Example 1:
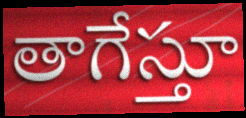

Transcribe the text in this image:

తాగేస్తూ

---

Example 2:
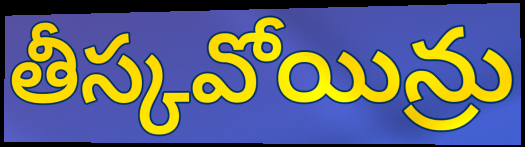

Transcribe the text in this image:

తీస్కవోయిన్రు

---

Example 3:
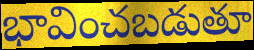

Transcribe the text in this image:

భావించబడుతూ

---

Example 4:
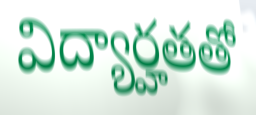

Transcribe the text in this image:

విద్యార్హతతో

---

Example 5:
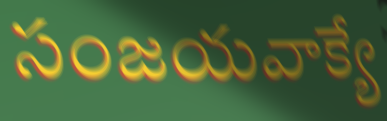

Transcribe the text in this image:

సంజయవాక్యే